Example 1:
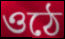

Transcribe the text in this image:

ওঠে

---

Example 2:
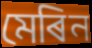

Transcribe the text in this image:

মেৰিন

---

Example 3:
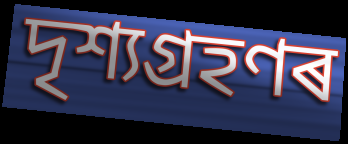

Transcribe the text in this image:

দৃশ্যগ্ৰহণৰ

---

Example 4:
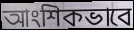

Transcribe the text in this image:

আংশিকভাবে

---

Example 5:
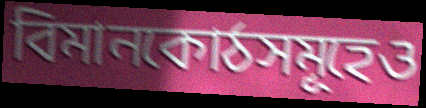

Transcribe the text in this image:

বিমানকোঠসমূহেও